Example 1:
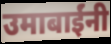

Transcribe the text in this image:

उमाबाईंनी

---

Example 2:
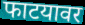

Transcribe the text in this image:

फाटयावर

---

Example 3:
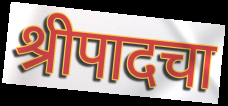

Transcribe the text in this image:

श्रीपादचा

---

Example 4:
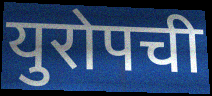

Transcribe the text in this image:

युरोपची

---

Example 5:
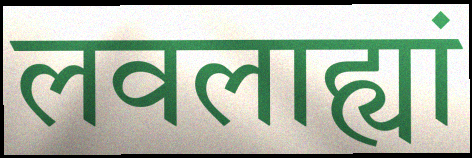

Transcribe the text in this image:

लवलाह्यां